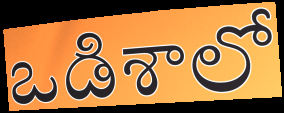
ఒడిశాలో